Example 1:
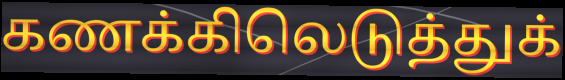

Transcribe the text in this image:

கணக்கிலெடுத்துக்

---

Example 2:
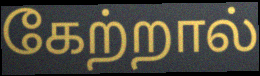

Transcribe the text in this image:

கேற்றால்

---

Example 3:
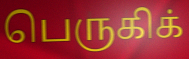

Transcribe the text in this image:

பெருகிக்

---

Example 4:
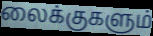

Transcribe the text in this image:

லைக்குகளும்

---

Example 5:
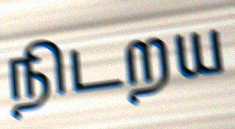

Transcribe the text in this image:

நிடறய